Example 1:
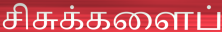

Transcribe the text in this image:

சிசுக்களைப்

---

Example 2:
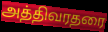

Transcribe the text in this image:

அத்திவரதரை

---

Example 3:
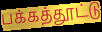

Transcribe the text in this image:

பக்கத்தூட்டு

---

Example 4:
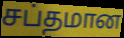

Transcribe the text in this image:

சப்தமான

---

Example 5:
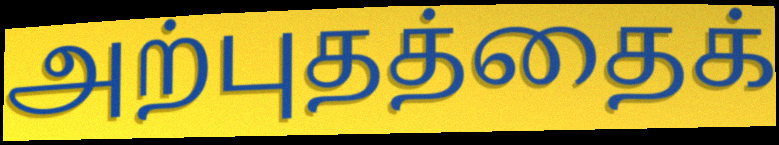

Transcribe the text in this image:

அற்புதத்தைக்